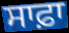
ਸਾਫ਼ਾ